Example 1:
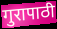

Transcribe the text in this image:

गुरापाठी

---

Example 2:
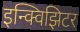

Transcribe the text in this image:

इन्क्विझिटर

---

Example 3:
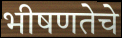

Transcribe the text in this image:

भीषणतेचे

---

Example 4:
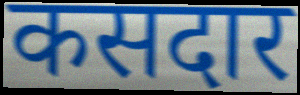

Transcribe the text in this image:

कसदार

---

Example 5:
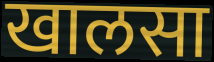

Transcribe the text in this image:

खालसा